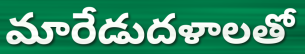
మారేడుదళాలతో